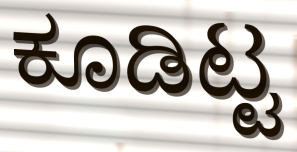
ಕೂಡಿಟ್ಟ